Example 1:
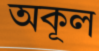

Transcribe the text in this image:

অকূল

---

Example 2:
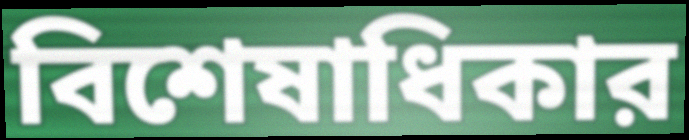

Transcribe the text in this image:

বিশেষাধিকার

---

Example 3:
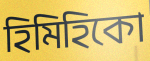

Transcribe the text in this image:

হিমিহিকো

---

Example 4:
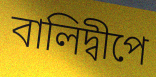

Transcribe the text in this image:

বালিদ্বীপে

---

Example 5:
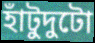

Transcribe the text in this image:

হাঁটুদুটো